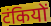
टंकियों